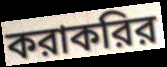
করাকরির